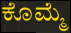
ಕೊಮ್ಮೆ